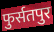
फुर्सतपुर